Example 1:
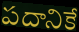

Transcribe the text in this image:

పదానికే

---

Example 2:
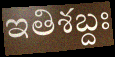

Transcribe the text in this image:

ఇతిశబ్దః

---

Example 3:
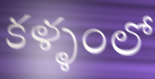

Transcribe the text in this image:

కళ్ళంలో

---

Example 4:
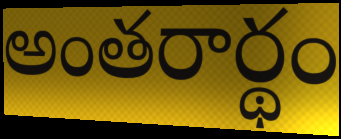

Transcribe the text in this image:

అంతరార్థం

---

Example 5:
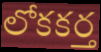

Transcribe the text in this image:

లోకకర్త